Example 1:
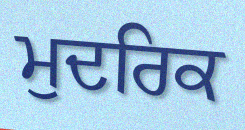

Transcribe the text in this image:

ਮੁਦਰਿਕ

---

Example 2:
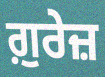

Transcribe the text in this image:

ਗ਼ੁਰੇਜ਼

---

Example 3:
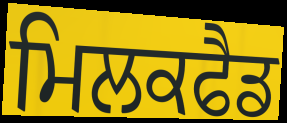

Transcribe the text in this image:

ਮਿਲਕਫੈਡ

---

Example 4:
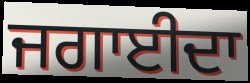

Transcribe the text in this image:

ਜਗਾਈਦਾ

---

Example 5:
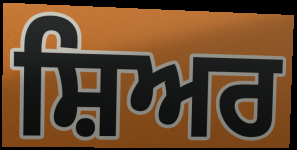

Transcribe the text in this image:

ਸ਼ਿਅਰ